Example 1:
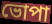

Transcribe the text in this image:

ভোপা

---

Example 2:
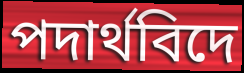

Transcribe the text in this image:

পদাৰ্থবিদে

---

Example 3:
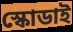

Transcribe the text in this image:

স্কোডাই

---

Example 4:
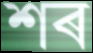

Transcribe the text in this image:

শৰ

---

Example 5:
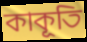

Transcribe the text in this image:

কাকূতি